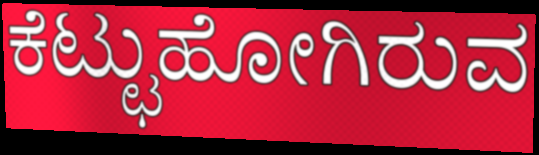
ಕೆಟ್ಟುಹೋಗಿರುವ